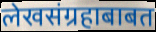
लेखसंग्रहाबाबत